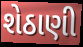
શેઠાણી